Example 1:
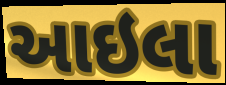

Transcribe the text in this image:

આઇલા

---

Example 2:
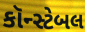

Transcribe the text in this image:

કૉન્સ્ટેબલ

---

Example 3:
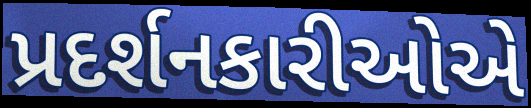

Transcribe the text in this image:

પ્રદર્શનકારીઓએ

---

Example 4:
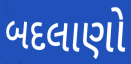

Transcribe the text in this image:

બદલાણો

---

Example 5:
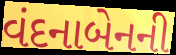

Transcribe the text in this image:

વંદનાબેનની